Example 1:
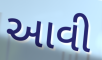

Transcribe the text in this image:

આવી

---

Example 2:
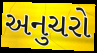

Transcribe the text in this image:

અનુચરો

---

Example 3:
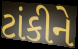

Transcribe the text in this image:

ટાંકીને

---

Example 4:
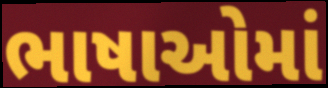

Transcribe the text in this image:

ભાષાઓમાં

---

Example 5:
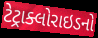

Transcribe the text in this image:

ટેટ્રાક્લોરાઇડનો